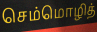
செம்மொழித்